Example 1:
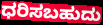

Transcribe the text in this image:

ಧರಿಸಬಹುದು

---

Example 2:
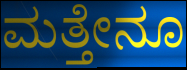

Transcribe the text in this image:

ಮತ್ತೇನೂ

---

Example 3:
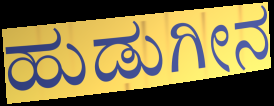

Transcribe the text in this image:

ಹುಡುಗೀನ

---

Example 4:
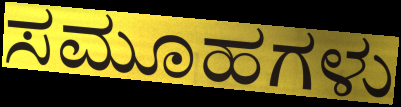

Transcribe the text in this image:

ಸಮೂಹಗಳು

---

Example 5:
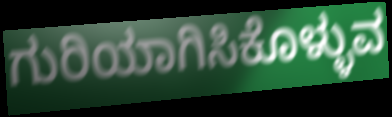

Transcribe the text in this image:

ಗುರಿಯಾಗಿಸಿಕೊಳ್ಳುವ